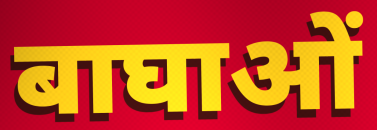
बाघाओं